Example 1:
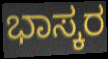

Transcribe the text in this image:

ಭಾಸ್ಕರ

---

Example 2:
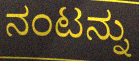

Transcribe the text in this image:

ನಂಟನ್ನು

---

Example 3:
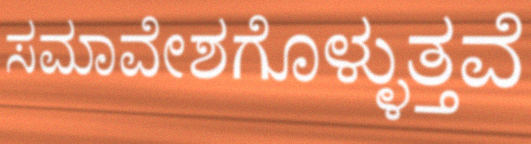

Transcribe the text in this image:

ಸಮಾವೇಶಗೊಳ್ಳುತ್ತವೆ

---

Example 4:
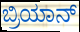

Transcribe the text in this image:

ಬ್ರಿಯಾನ್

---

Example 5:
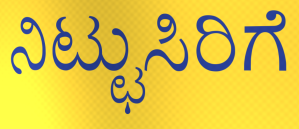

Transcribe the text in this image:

ನಿಟ್ಟುಸಿರಿಗೆ